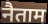
नैताम